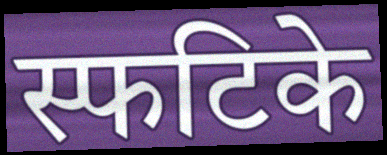
स्फटिके